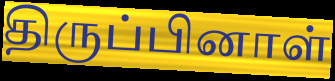
திருப்பினாள்